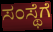
ಸಂಸ್ಥೆಗೆ